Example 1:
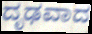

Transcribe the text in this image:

ದೃಢವಾದ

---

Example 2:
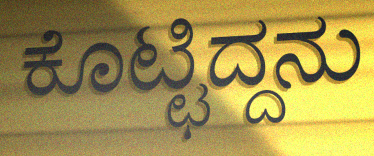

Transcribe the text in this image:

ಕೊಟ್ಟಿದ್ದನು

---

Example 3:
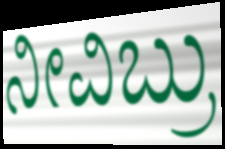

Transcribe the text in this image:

ನೀವಿಬ್ರು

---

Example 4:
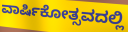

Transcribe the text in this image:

ವಾರ್ಷಿಕೋತ್ಸವದಲ್ಲಿ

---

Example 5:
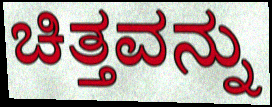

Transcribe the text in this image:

ಚಿತ್ತವನ್ನು